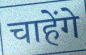
चाहेंगे